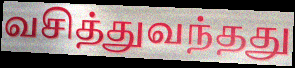
வசித்துவந்தது